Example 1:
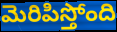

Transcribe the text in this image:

మెరిపిస్తోంది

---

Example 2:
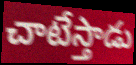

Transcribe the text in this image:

చాటేస్తాడు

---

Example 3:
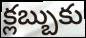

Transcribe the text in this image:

క్లబ్బుకు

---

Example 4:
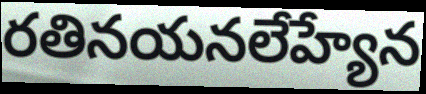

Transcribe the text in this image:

రతినయనలేహ్యేన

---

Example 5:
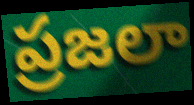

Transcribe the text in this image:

ప్రజలా